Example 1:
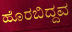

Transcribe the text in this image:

ಹೊರಬಿದ್ದವ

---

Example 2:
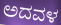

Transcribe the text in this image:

ಅದವಳ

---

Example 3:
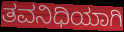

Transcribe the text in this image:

ತವನಿಧಿಯಾಗಿ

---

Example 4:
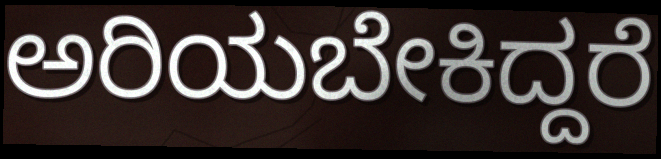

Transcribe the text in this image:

ಅರಿಯಬೇಕಿದ್ದರೆ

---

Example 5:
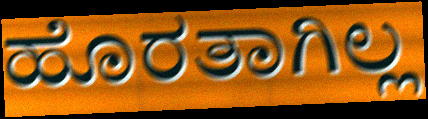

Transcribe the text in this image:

ಹೊರತಾಗಿಲ್ಲ